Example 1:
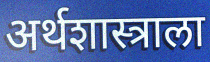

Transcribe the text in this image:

अर्थशास्त्राला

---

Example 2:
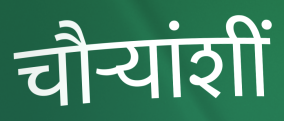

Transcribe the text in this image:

चौर्‍यांशीं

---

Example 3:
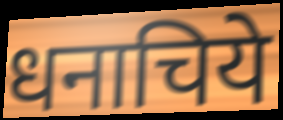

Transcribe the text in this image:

धनाचिये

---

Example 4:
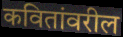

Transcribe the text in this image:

कवितांवरील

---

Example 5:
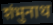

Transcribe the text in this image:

शंभुनाथ